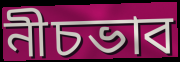
নীচভাব